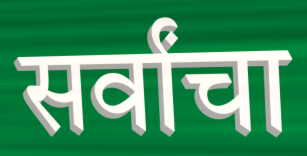
सर्वांचा